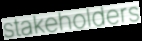
stakeholders